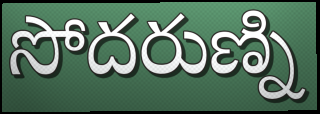
సోదరుణ్ని